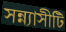
সন্ন্যাসীটি